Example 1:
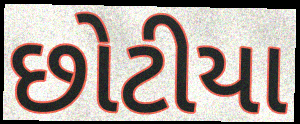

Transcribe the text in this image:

છોટીયા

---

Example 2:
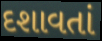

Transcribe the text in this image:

દશાવતાં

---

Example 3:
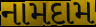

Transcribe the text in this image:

નામદામ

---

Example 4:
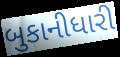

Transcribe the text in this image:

બુકાનીધારી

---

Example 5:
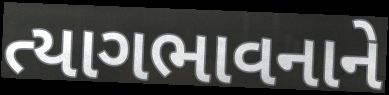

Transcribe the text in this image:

ત્યાગભાવનાને